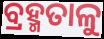
ବ୍ରହ୍ମତାଳୁ